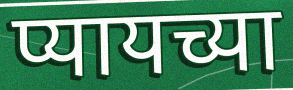
प्यायच्या